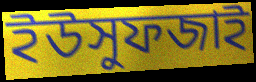
ইউসুফজাই